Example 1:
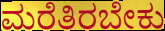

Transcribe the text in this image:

ಮರೆತಿರಬೇಕು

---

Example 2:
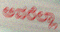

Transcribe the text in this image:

ಅವರೆಲ್ಲಾ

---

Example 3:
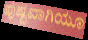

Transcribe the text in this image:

ಪುಷ್ಟವಾಗಿಯೂ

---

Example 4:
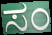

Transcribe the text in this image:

ಸಂ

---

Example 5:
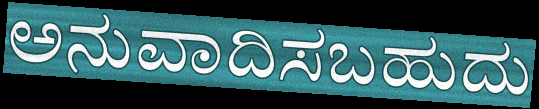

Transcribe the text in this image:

ಅನುವಾದಿಸಬಹುದು